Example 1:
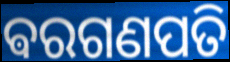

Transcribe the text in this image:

ଵରଗଣପତି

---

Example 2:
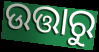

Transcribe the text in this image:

ଉତ୍ତାରୁ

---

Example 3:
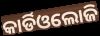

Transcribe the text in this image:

କାର୍ଡିଓଲୋଜି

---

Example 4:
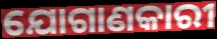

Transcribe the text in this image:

ଯୋଗାଣକାରୀ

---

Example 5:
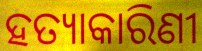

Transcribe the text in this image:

ହତ୍ୟାକାରିଣୀ